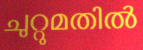
ചുറ്റുമതിൽ